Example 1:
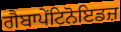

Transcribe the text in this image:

ਗੈਬਾਪੇਂਟਿਨੋਇਡਜ਼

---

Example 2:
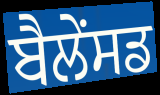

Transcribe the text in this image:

ਬੈਲੇਂਸਡ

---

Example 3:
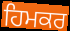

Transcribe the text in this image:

ਹਿਮਕਰ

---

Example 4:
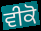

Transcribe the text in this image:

ਵੀਕੋ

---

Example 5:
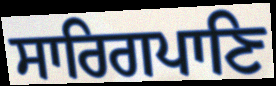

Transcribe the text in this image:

ਸਾਰਿਗਪਾਣਿ